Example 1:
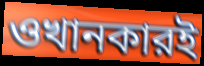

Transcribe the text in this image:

ওখানকারই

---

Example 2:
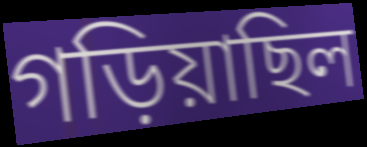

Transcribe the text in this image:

গড়িয়াছিল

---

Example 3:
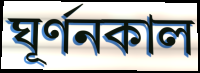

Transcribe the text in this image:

ঘূর্ণনকাল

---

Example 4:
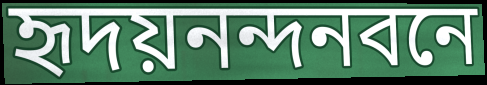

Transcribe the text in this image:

হৃদয়নন্দনবনে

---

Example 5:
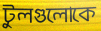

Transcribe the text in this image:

টুলগুলোকে